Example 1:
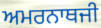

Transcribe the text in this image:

ਅਮਰਨਾਥਜੀ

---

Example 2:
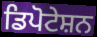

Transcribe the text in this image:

ਡਿਪੋਟੇਸ਼ਨ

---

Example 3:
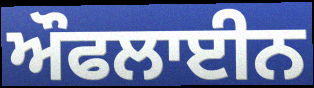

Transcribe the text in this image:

ਔਫਲਾਈਨ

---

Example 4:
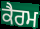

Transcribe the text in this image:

ਕੈਰਮ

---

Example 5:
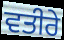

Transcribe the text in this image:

ਵਤੀਰੇ